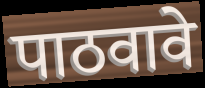
पाठवावे